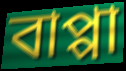
বাপ্পা